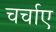
चर्चाए